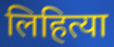
लिहित्या